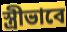
স্ত্রীভাবে